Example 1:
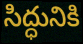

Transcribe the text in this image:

సిద్ధునికి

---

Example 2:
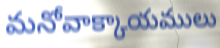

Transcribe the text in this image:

మనోవాక్కాయములు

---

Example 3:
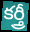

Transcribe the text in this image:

కర్త్రీ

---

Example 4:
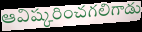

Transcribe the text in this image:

ఆవిష్కరించగలిగాడు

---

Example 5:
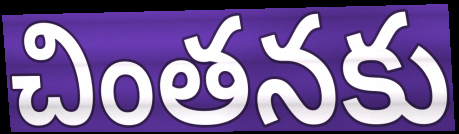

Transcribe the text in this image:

చింతనకు